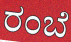
ರಂಬೆ